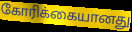
கோரிக்கையானது